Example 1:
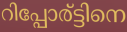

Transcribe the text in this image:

റിപ്പോര്ട്ടിനെ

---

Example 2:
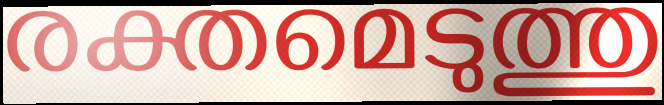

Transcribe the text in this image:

രക്തമെടുത്തു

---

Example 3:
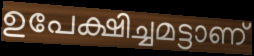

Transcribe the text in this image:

ഉപേക്ഷിച്ചമട്ടാണ്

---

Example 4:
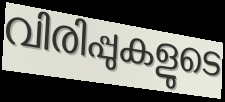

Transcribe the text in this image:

വിരിപ്പുകളുടെ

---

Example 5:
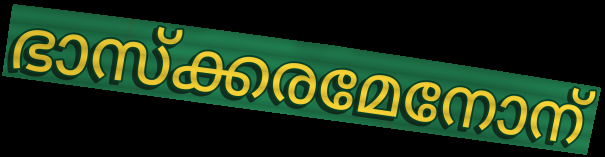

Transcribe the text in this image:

ഭാസ്ക്കരമേനോന്